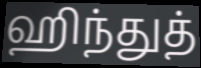
ஹிந்துத்